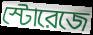
স্টোরেজে